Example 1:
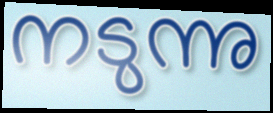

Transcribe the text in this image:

നടുന്നു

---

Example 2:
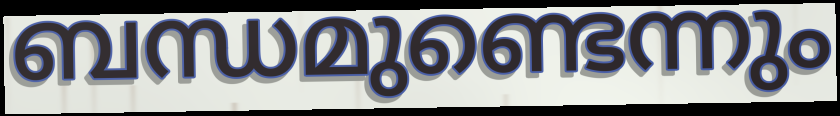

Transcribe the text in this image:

ബന്ധമുണ്ടെന്നും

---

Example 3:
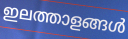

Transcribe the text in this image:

ഇലത്താളങ്ങൾ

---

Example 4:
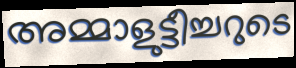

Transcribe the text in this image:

അമ്മാളുട്ടീച്ചറുടെ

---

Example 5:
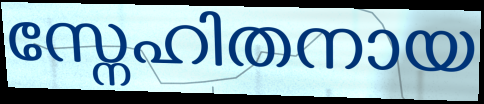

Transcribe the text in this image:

സ്നേഹിതനായ